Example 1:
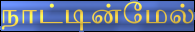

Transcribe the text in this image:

நாட்டின்மேல்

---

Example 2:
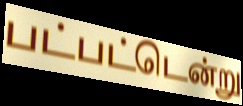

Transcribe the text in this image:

பட்பட்டென்று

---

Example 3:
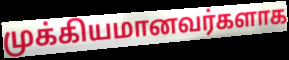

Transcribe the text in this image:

முக்கியமானவர்களாக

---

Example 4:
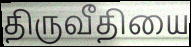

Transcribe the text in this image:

திருவீதியை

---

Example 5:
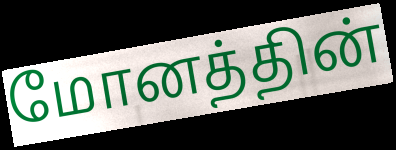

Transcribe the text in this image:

மோனத்தின்